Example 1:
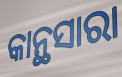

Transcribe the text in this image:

କାନ୍ଥସାରା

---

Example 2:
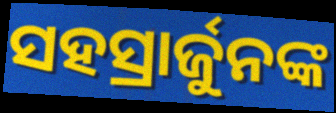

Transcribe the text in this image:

ସହସ୍ରାର୍ଜୁନଙ୍କ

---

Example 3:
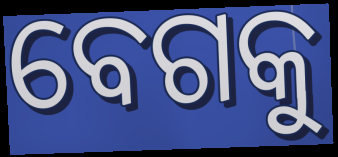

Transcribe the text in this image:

ବେଗକୁ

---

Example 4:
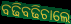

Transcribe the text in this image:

ବଢିବଢିଚାଲେ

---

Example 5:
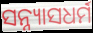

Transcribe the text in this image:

ସନ୍ନ୍ୟାସଧର୍ମ